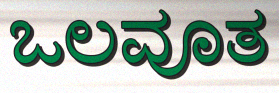
ಒಲವೂತ